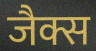
जैक्स